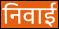
निवाई